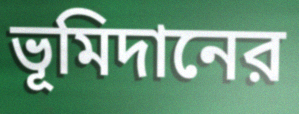
ভূমিদানের